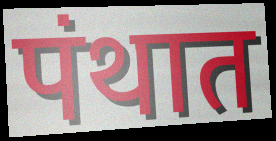
पंथात